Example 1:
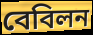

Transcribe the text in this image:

বেবিলন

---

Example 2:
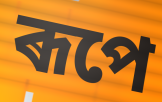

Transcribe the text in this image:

ৰূপে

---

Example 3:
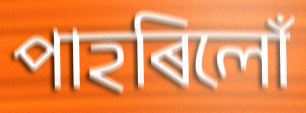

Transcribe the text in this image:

পাহৰিলোঁ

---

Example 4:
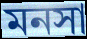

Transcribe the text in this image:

মনসা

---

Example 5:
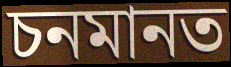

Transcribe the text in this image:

চনমানত